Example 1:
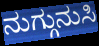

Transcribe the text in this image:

ನುಗ್ಗುನುಸಿ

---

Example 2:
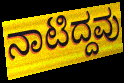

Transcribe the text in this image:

ನಾಟಿದ್ದವು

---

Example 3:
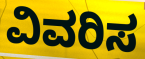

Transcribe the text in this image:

ವಿವರಿಸ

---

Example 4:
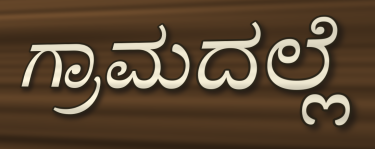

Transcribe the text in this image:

ಗ್ರಾಮದಲ್ಲೆ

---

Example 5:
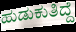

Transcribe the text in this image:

ಹುಡುಕುತಿದ್ದೆ